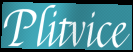
Plitvice